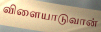
விளையாடுவான்